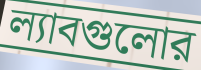
ল্যাবগুলোর